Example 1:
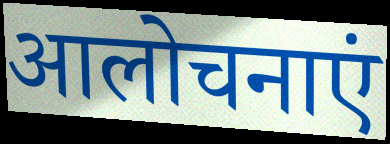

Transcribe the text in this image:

आलोचनाएं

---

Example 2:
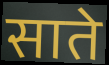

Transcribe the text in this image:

साते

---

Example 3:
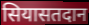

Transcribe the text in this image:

सियासतदान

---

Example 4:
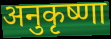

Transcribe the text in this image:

अनुकृष्णा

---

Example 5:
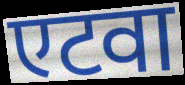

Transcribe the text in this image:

एटवा